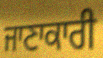
ਜਾਣਾਕਾਰੀ